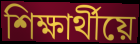
শিক্ষাৰ্থীয়ে